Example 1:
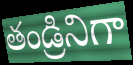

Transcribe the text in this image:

తండ్రినిగా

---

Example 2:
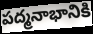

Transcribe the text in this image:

పద్మనాభానికి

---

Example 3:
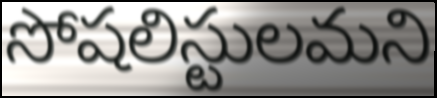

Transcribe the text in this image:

సోషలిస్టులమని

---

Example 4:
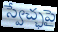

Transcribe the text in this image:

స్వేచ్ఛపై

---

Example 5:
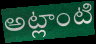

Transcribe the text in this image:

అట్లాంటి